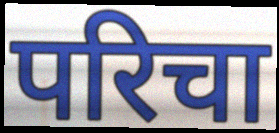
परिचा